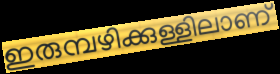
ഇരുമ്പഴിക്കുള്ളിലാണ്